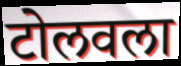
टोलवला